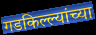
गडकिल्ल्यांच्या